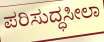
ಪರಿಸುದ್ಧಸೀಲಾ